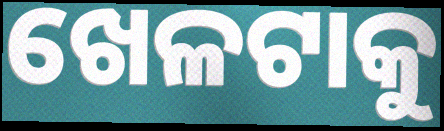
ଖେଳଟାକୁ